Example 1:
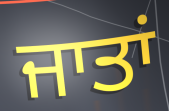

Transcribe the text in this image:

ਜਾਤਾਂ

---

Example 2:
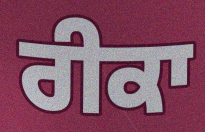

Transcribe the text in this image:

ਰੀਕਾ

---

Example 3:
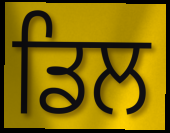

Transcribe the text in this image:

ਡਿਲ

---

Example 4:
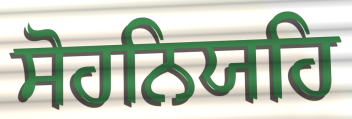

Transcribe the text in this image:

ਸੋਹਨਿਯਹਿ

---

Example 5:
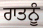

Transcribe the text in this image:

ਰਾਤਨੂੰ